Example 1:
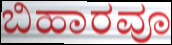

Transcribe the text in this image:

ಬಿಹಾರವೂ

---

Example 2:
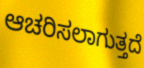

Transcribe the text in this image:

ಆಚರಿಸಲಾಗುತ್ತದೆ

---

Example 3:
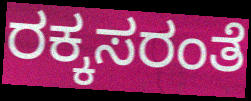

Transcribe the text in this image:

ರಕ್ಕಸರಂತೆ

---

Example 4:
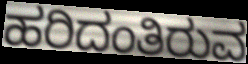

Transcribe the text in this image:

ಹರಿದಂತಿರುವ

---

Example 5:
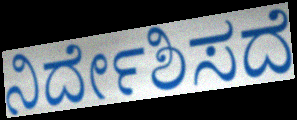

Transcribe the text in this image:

ನಿರ್ದೇಶಿಸದೆ